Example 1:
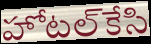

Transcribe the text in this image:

హోటల్‌కేసి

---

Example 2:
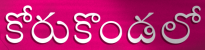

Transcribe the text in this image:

కోరుకొండలో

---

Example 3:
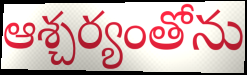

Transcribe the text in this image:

ఆశ్చర్యంతోను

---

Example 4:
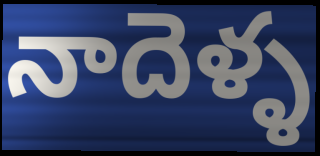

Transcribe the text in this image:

నాదెళ్ళ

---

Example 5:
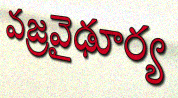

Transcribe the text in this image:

వజ్రవైఢూర్య